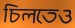
চিলতেও